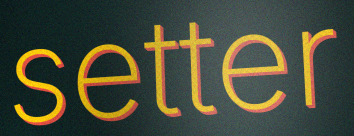
setter